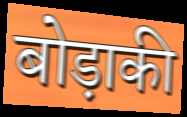
बोड़ाकी